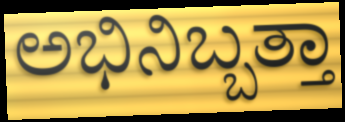
ಅಭಿನಿಬ್ಬತ್ತಾ